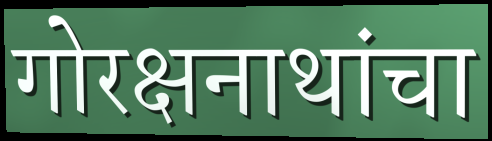
गोरक्षनाथांचा